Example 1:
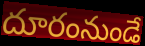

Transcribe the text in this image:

దూరంనుండే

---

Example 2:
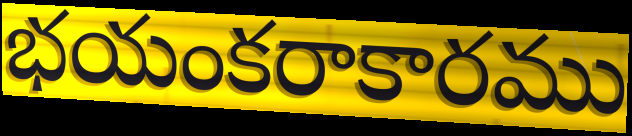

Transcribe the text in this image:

భయంకరాకారము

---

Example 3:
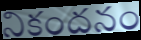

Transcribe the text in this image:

నికందనం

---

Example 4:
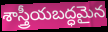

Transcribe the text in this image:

శాస్త్రీయబద్ధమైన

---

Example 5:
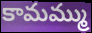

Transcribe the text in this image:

కామమ్ము